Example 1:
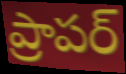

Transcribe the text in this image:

ప్రాపర్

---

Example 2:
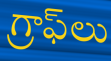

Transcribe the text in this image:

గ్రాఫ్‌లు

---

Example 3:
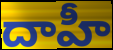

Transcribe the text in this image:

దాహీ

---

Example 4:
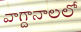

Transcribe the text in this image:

వాగ్దానాలలో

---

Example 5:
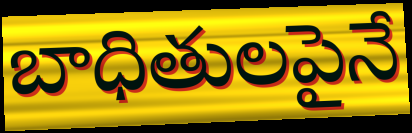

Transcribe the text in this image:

బాధితులపైనే